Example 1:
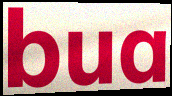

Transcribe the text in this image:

bua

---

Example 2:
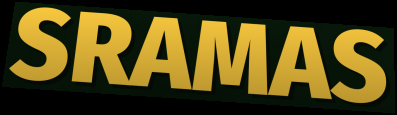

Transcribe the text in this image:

SRAMAS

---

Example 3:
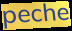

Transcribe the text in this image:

peche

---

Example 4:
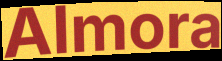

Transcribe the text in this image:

Almora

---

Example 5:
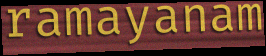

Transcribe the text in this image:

ramayanam